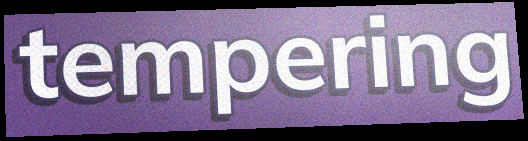
tempering